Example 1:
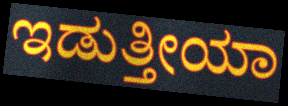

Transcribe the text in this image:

ಇಡುತ್ತೀಯಾ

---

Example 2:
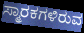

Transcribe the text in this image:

ಸ್ಮಾರಕಗಳಿರುವ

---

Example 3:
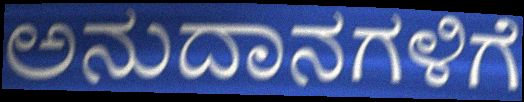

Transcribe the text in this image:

ಅನುದಾನಗಳಿಗೆ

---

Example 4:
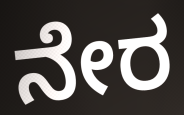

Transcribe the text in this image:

ನೇರ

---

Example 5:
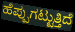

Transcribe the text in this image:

ಹೆಪ್ಪುಗಟ್ಟುತ್ತಿದೆ